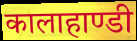
कालाहाण्डी